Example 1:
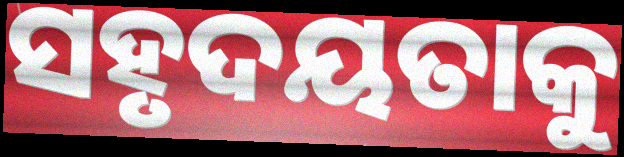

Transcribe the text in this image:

ସହୃଦୟତାକୁ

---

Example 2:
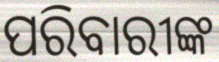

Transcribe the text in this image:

ପରିବାରୀଙ୍କ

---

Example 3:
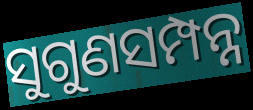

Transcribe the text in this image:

ସୁଗୁଣସମ୍ପନ୍ନ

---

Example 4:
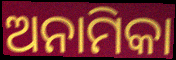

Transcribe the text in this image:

ଅନାମିକା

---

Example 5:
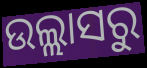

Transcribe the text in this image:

ଉଲ୍ଲାସରୁ